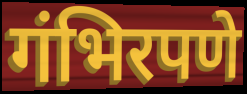
गंभिरपणे